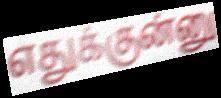
எதுக்குன்னு